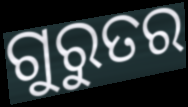
ଗୁରୁତର